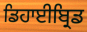
ਡਿਹਾਈਬ੍ਰਿਡ